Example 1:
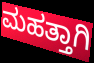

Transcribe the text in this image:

ಮಹತ್ತಾಗಿ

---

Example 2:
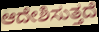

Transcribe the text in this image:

ಆದೇಶಿಸುತ್ತದೆ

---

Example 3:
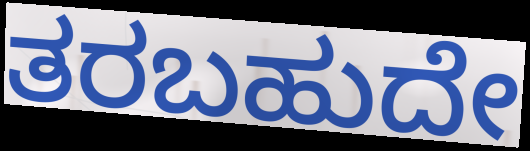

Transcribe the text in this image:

ತರಬಹುದೇ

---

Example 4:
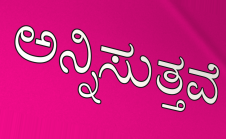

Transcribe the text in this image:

ಅನ್ನಿಸುತ್ತವೆ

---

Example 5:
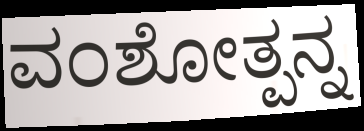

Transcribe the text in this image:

ವಂಶೋತ್ಪನ್ನ